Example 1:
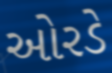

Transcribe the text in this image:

ઓરડે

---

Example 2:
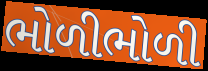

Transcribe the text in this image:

ભોળીભોળી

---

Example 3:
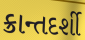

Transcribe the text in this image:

ક્રાન્તદર્શી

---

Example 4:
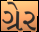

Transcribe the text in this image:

ગ્રેર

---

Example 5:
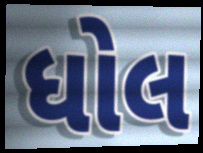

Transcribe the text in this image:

ધોલ